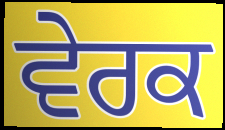
ਵੇਰਕ